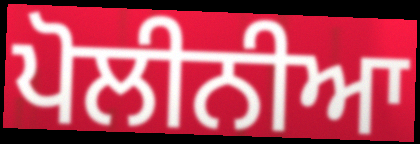
ਪੋਲੀਨੀਆ